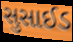
સુસાઈડ